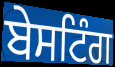
ਬੇਸਟਿੰਗ